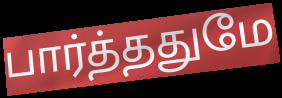
பார்த்ததுமே